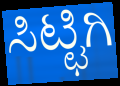
ಸಿಟ್ಟಿಗಿ